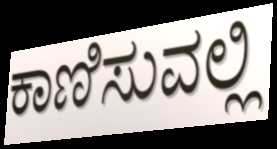
ಕಾಣಿಸುವಲ್ಲಿ